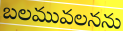
బలమువలనను